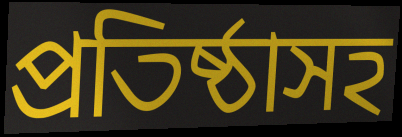
প্রতিষ্ঠাসহ